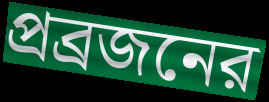
প্রব্রজনের